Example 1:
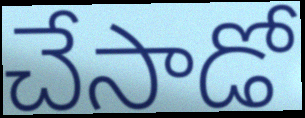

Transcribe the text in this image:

చేసాడో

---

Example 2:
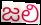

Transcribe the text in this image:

జలి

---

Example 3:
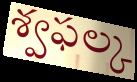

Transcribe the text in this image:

శ్వఫల్క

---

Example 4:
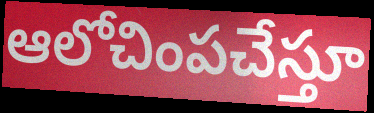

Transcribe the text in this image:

ఆలోచింపచేస్తూ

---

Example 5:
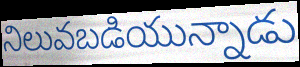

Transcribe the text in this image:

నిలువబడియున్నాడు